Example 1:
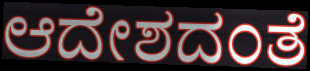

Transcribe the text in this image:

ಆದೇಶದಂತೆ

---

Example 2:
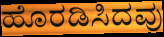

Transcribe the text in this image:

ಹೊರಡಿಸಿದವು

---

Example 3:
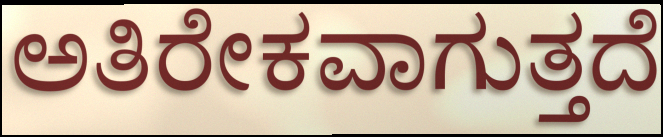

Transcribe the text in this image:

ಅತಿರೇಕವಾಗುತ್ತದೆ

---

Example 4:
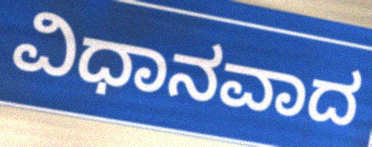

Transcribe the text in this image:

ವಿಧಾನವಾದ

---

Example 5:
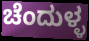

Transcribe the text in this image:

ಚೆಂದುಳ್ಳ